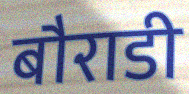
बौराडी